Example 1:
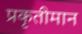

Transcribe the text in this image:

प्रकृतीमान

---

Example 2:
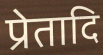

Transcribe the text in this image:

प्रेतादि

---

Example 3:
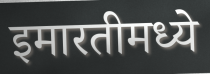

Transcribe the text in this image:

इमारतीमध्ये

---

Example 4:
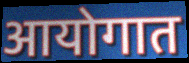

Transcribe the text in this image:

आयोगात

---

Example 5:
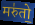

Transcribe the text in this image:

मरु॑तो॒